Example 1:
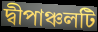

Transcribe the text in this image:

দ্বীপাঞ্চলটি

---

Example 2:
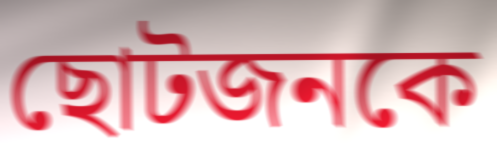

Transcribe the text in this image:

ছোটজনকে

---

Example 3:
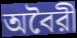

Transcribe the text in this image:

অবৈরী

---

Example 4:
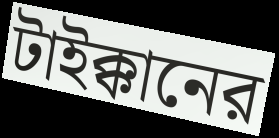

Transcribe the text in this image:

টাইক্কানের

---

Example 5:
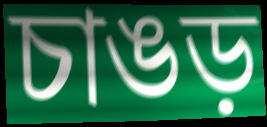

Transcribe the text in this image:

চাঙড়